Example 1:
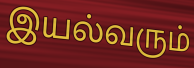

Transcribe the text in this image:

இயல்வரும்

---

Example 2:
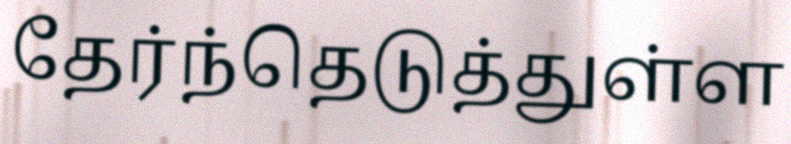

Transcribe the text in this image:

தேர்ந்தெடுத்துள்ள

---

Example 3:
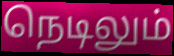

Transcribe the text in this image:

நெடிலும்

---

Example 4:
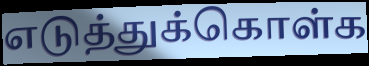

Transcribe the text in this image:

எடுத்துக்கொள்க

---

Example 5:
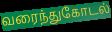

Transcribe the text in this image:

வரைந்துகோடல்